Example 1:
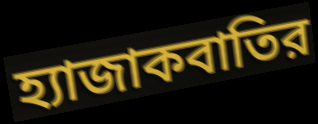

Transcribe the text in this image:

হ্যাজাকবাতির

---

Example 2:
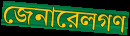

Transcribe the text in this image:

জেনারেলগণ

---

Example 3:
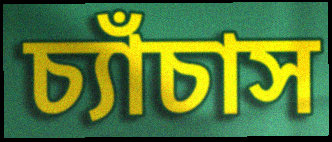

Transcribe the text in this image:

চ্যাঁচাস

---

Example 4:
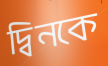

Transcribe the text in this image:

দ্বিনকে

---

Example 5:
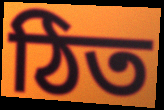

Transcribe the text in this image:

ঠিত